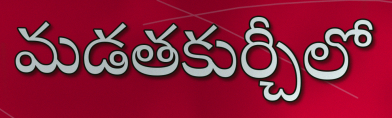
మడతకుర్చీలో